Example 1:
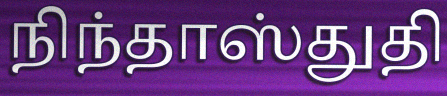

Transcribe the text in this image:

நிந்தாஸ்துதி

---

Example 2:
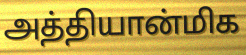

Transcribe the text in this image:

அத்தியான்மிக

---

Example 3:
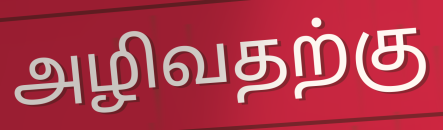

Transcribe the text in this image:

அழிவதற்கு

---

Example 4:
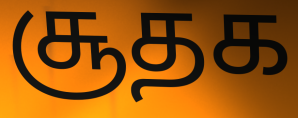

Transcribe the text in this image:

சூதக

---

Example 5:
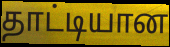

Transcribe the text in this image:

தாட்டியான